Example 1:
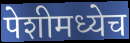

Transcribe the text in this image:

पेशीमध्येच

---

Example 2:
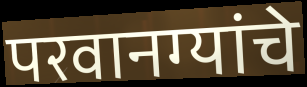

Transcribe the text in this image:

परवानग्यांचे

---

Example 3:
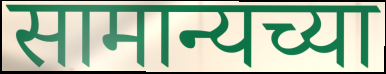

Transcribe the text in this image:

सामान्यच्या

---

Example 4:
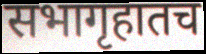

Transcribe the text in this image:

सभागृहातच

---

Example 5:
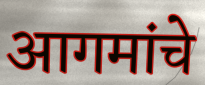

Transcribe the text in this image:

आगमांचे